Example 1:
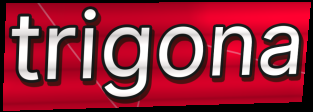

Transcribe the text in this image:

trigona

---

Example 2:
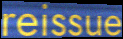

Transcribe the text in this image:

reissue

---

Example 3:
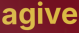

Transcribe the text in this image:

agive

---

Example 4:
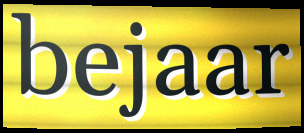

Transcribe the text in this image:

bejaar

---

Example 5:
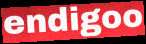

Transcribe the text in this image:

endigoo